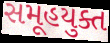
સમૂહયુક્ત